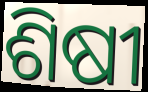
ଶିଷୀ